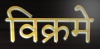
विक्रमे